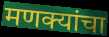
मणक्यांचा